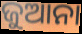
ଜୁଆନା